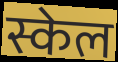
स्केल